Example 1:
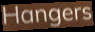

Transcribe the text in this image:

Hangers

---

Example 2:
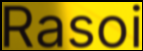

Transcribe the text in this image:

Rasoi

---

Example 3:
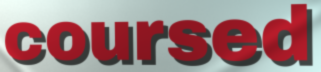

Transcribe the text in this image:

coursed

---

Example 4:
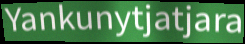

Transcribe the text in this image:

Yankunytjatjara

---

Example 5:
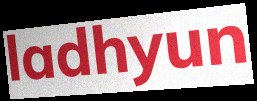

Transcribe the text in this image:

ladhyun